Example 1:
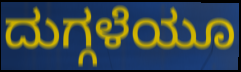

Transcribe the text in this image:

ದುಗ್ಗಳೆಯೂ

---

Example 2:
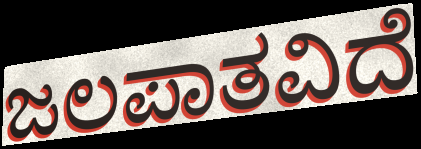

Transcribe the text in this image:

ಜಲಪಾತವಿದೆ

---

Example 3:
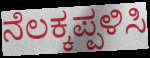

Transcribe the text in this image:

ನೆಲಕ್ಕಪ್ಪಳಿಸಿ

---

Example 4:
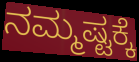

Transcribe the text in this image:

ನಮ್ಮಷ್ಟಕ್ಕೆ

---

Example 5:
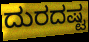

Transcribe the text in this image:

ದುರದಷ್ಟ